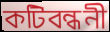
কটিবন্ধনী